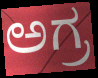
ಅಗ್ರ